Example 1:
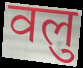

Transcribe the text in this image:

वलु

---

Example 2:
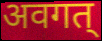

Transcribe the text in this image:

अवगत्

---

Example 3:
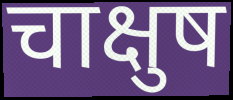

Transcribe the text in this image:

चाक्षुष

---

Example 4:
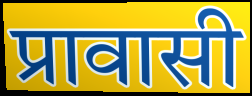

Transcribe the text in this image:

प्रावासी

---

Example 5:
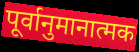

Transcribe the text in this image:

पूर्वानुमानात्मक